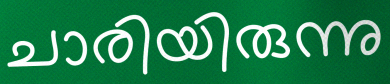
ചാരിയിരുന്നു